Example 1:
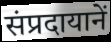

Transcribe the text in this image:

संप्रदायानें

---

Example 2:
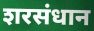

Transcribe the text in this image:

शरसंधान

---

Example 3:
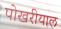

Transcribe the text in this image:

पोखरीयाल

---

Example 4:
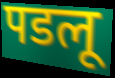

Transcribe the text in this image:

पडलू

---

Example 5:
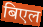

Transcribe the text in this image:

बिएल